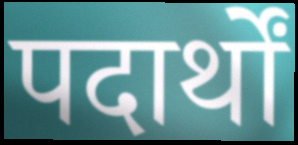
पदार्थों